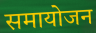
समायोजन